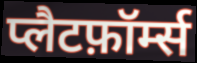
प्लैटफ़ॉर्म्स